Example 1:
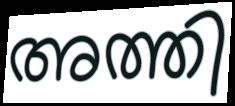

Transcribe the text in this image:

അത്തി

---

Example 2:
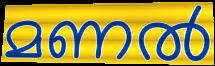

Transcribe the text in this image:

മണൽ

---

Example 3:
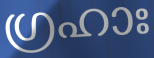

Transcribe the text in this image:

ഗ്രഹാഃ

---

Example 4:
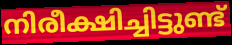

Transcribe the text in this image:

നിരീക്ഷിച്ചിട്ടുണ്ട്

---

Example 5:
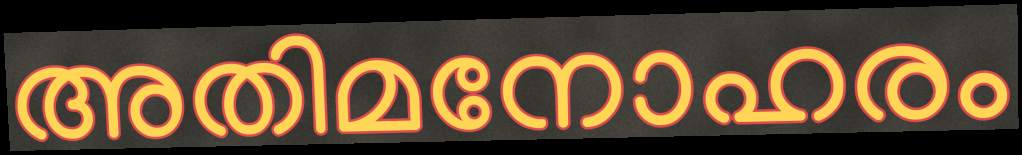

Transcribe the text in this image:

അതിമനോഹരം